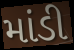
માંડી